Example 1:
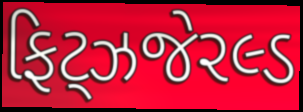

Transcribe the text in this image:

ફિટ્ઝજેરલ્ડ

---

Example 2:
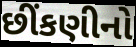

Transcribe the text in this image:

છીંકણીનો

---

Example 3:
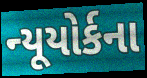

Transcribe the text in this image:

ન્યૂયોર્કના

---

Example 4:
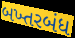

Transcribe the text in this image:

બખ્તરબંધ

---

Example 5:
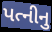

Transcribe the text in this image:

પત્નીનુ